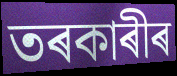
তৰকাৰীৰ